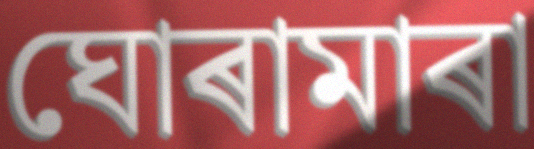
ঘোৰামাৰা